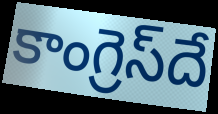
కాంగ్రెస్‌దే